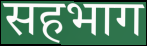
सहभाग